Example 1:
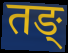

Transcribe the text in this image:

तङ्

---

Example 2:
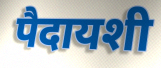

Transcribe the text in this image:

पैदायशी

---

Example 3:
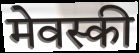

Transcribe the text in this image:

मेवस्की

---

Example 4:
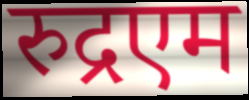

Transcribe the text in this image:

रुद्रएम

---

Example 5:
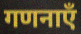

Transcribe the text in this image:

गणनाएँ